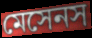
মেসেনস